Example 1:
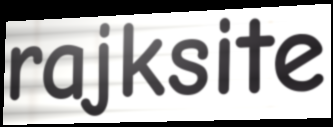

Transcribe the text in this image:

rajksite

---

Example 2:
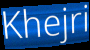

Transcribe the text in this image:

Khejri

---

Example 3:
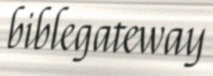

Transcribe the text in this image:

biblegateway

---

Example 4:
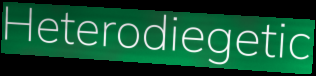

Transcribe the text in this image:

Heterodiegetic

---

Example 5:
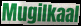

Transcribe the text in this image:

Mugilkaal